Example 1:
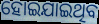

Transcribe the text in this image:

ହୋଇଯାଇଥିବ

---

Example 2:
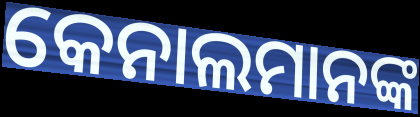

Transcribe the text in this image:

କେନାଲମାନଙ୍କ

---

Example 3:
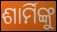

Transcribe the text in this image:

ଶାର୍ମିଙ୍କୁ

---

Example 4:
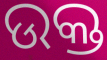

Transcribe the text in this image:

ଉକ୍ତ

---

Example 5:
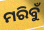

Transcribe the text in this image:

ମରିବୁଁ